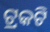
ଟ୍ରକଟି